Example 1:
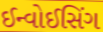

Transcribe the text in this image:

ઈન્વોઈસિંગ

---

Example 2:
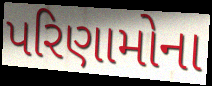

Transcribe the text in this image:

પરિણામોના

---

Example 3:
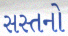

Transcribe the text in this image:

સસ્તનો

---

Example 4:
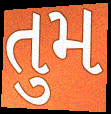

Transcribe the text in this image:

તુમ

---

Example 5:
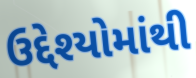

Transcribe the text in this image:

ઉદ્દેશ્યોમાંથી